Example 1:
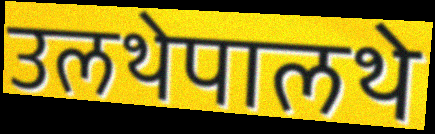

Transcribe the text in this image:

उलथेपालथे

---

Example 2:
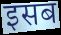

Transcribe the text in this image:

इसब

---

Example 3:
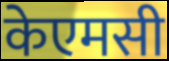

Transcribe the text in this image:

केएमसी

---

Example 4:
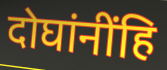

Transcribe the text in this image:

दोघांनींहि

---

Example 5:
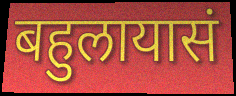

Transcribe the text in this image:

बहुलायासं